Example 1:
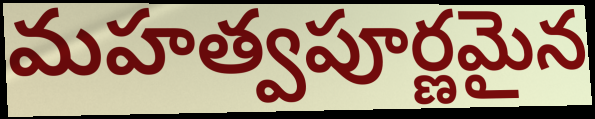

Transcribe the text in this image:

మహత్వపూర్ణమైన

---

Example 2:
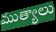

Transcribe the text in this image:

ముత్యాలు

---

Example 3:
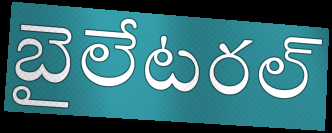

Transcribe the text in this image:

బైలేటరల్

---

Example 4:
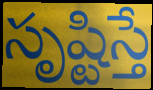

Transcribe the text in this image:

సృష్టిస్తే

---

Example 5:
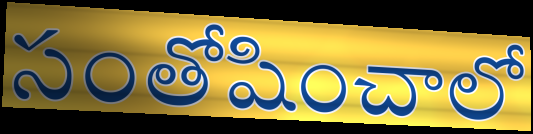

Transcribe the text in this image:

సంతోషించాలో